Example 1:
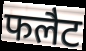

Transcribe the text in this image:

फलैट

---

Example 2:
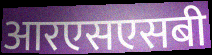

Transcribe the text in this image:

आरएसएसबी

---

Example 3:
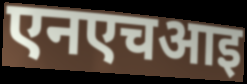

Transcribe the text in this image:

एनएचआइ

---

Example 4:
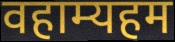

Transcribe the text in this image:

वहाम्यहम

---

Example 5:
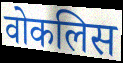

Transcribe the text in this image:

वोकलिस